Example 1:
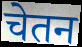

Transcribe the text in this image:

चेतन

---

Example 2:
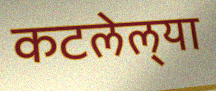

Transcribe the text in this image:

कटलेल्या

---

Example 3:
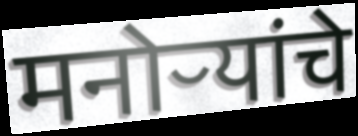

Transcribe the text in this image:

मनोऱ्यांचे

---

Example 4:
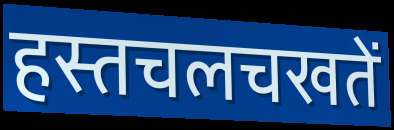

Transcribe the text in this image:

हस्तचलचखतें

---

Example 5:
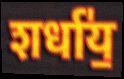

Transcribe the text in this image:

शर्धा॑य॒